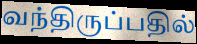
வந்திருப்பதில்